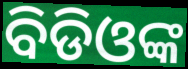
ବିଡିଓଙ୍କ